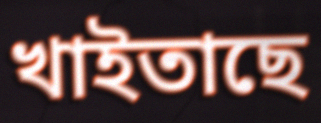
খাইতাছে